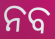
ନବ